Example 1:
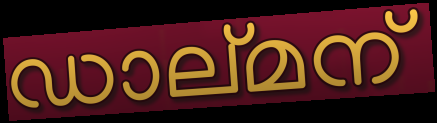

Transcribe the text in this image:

ഡാല്മന്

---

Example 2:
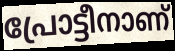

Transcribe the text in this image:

പ്രോട്ടീനാണ്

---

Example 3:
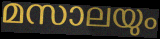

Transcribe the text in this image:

മസാലയും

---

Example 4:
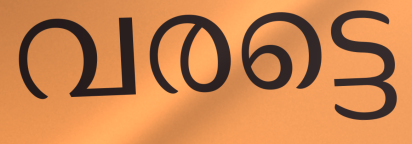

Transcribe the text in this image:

വരട്ടെ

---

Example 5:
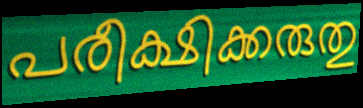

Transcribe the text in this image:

പരീക്ഷിക്കരുതു